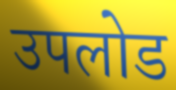
उपलोड